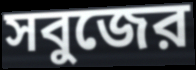
সবুজের